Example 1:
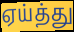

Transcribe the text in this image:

ஏய்த்து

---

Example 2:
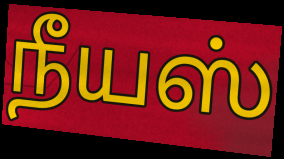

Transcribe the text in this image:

நீயஸ்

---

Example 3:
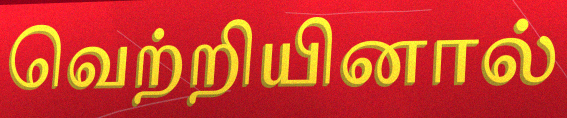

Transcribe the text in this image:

வெற்றியினால்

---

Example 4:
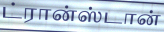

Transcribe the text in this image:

ட்ரான்ஸ்டான்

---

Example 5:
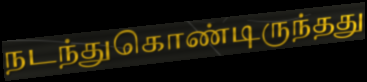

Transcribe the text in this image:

நடந்துகொண்டிருந்தது